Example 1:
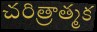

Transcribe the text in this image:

చరిత్రాత్మక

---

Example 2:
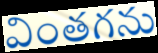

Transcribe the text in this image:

వింతగను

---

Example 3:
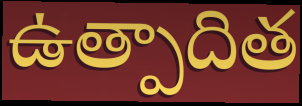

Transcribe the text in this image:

ఉత్పాదిత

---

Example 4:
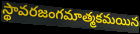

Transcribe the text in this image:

స్థావరజంగమాత్మకమయిన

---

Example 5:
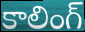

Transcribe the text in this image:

కాలింగ్